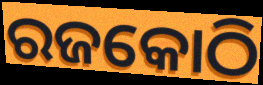
ରଜକୋଠି